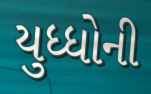
યુધ્ધોની